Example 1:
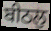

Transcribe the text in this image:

ਬੀਠਲੁ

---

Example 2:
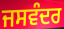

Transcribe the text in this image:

ਜਸਵੰਦਰ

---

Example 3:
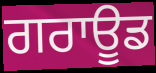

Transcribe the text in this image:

ਗਰਾਊਡ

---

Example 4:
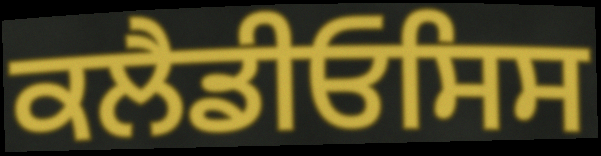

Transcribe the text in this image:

ਕਲੈਡੀਓਸਿਸ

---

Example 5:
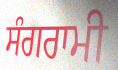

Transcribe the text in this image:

ਸੰਗਰਾਮੀ